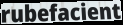
rubefacient